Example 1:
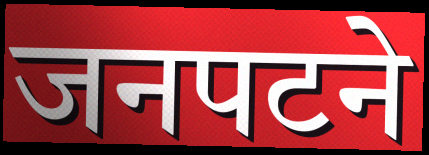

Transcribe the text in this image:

जनपटने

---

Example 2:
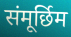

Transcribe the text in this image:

संमूर्छिम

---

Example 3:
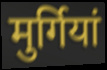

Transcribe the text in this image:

मुर्गियां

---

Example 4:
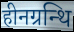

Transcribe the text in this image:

हीनग्रन्थि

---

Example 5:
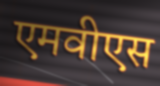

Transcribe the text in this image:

एमवीएस